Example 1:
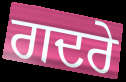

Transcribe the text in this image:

ਗਦਰੇ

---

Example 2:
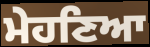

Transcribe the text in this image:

ਮੇਹਣਿਆ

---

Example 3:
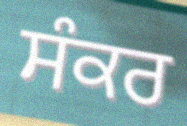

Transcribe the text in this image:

ਸੰਕਰ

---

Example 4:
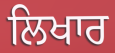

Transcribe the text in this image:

ਲਿਖਾਰ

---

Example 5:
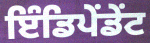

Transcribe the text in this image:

ਇੰਡਿਪੇਂਡੇਂਟ